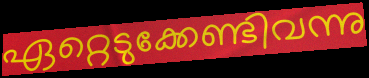
ഏറ്റെടുക്കേണ്ടിവന്നു